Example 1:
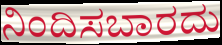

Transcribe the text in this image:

ನಿಂದಿಸಬಾರದು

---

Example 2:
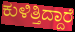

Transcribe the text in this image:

ಕುಳಿತ್ತಿದ್ದಾರೆ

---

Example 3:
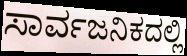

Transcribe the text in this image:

ಸಾರ್ವಜನಿಕದಲ್ಲಿ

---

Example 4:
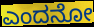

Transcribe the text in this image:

ಎಂದನೋ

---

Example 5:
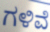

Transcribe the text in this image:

ಗಳಿವೆ